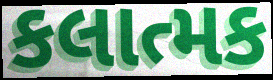
કલાત્મક